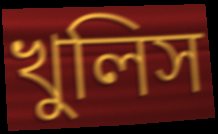
খুলিস